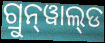
ଗ୍ରୁନ୍‌ୱାଲ୍‌ଡ